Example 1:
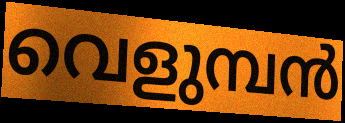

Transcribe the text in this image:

വെളുമ്പൻ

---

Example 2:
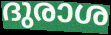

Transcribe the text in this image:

ദുരാശ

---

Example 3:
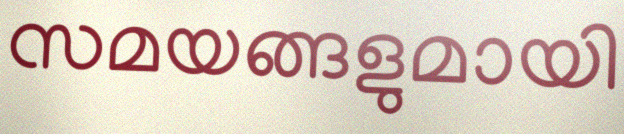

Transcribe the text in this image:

സമയങ്ങളുമായി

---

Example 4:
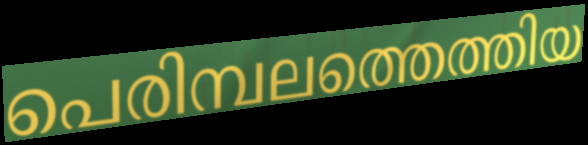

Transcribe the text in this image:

പെരിമ്പലത്തെത്തിയ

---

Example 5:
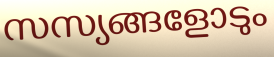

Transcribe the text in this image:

സസ്യങ്ങളോടും